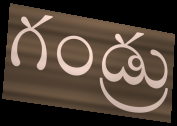
గండ్రు